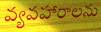
వ్యవహారాలను